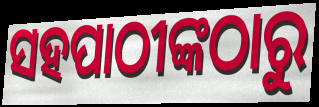
ସହପାଠୀଙ୍କଠାରୁ